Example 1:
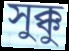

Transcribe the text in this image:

সুক্কু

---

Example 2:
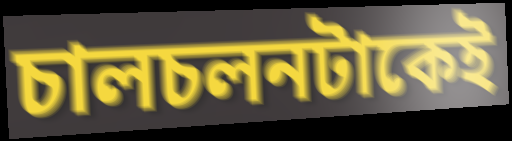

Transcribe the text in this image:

চালচলনটাকেই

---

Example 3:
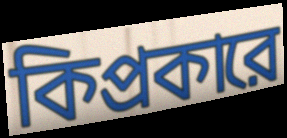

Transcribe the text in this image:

কিপ্রকারে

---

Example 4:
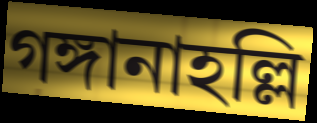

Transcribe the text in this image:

গঙ্গানাহল্লি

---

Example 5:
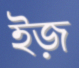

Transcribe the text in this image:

ইজ়